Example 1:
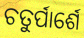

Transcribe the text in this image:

ଚତୁର୍ପାର୍ଶେ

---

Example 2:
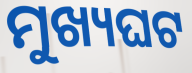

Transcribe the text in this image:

ମୁଖ୍ୟଘଟ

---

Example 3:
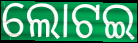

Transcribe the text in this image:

ଲୋଟଇ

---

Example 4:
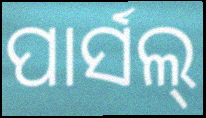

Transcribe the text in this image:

ପାର୍ସଲ୍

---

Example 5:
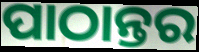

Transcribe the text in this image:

ପାଠାନ୍ତର